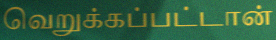
வெறுக்கப்பட்டான்